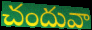
చందువా